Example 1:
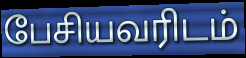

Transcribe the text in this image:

பேசியவரிடம்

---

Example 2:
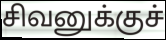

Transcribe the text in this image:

சிவனுக்குச்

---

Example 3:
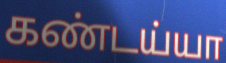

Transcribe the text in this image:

கண்டய்யா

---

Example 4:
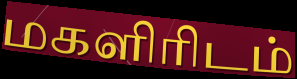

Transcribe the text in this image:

மகளிரிடம்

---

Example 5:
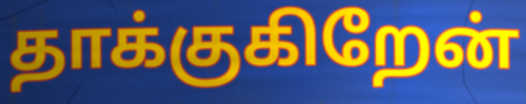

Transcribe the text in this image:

தாக்குகிறேன்